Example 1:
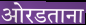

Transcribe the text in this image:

ओरडताना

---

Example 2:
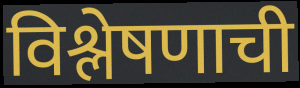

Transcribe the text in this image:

विश्लेषणाची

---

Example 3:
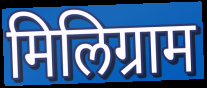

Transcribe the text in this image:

मिलिग्राम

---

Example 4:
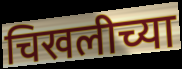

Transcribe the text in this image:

चिखलीच्या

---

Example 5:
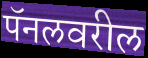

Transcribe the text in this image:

पॅनलवरील